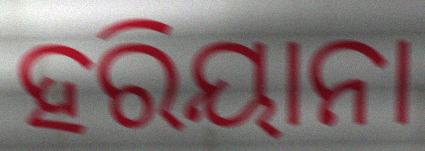
ହରିୟାନା